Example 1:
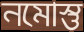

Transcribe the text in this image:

নমোস্তু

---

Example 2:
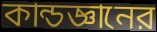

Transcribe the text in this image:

কান্ডজ্ঞানের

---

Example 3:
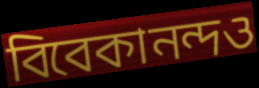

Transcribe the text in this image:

বিবেকানন্দও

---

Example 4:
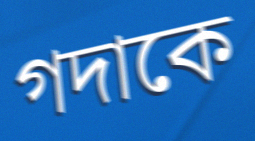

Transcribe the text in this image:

গদাকে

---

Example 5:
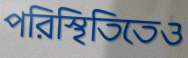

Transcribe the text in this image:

পরিস্থিতিতেও